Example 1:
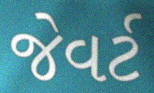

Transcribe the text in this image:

જેવર્ટ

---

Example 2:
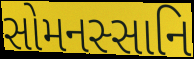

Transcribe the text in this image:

સોમનસ્સાનિ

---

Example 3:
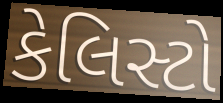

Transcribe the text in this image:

કેલિસ્ટો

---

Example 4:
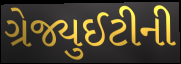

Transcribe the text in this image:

ગ્રેજ્યુઈટીની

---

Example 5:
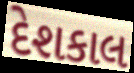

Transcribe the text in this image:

દેશકાલ